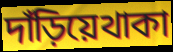
দাঁড়িয়েথাকা